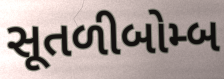
સૂતળીબોમ્બ